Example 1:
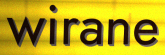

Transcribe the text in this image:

wirane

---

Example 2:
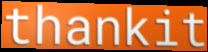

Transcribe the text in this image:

thankit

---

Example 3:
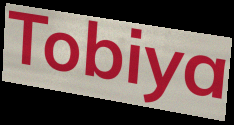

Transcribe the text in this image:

Tobiya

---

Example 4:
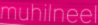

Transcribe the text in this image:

muhilneel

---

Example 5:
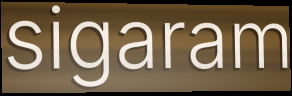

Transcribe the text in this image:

sigaram